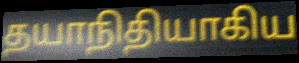
தயாநிதியாகிய